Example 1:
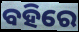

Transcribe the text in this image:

ବହିରେ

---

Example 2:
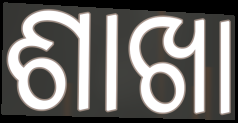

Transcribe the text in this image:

ଶାଖା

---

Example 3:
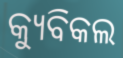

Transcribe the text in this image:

କ୍ୟୁବିକଲ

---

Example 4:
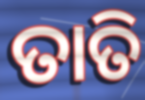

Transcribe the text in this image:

ତାତି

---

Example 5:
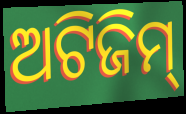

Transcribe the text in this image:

ଅଟିଜିମ୍